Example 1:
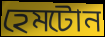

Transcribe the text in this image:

হেমটোন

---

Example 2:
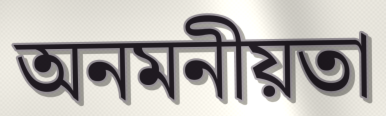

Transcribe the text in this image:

অনমনীয়তা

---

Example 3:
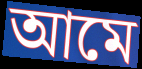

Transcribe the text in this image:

আমে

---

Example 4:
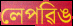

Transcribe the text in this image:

লেপৱিঙ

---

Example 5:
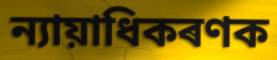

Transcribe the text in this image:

ন্যায়াধিকৰণক